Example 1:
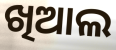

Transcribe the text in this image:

ଖିଆଲ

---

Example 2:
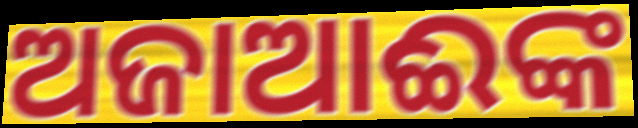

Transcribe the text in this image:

ଅଜାଆଈଙ୍କ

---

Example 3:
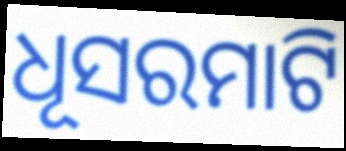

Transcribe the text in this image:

ଧୂସରମାଟି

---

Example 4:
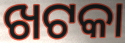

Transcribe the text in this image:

ଖଟକା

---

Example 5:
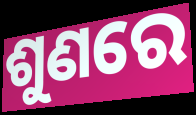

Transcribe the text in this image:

ଶୁଣରେ